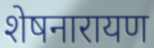
शेषनारायण